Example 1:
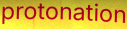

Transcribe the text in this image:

protonation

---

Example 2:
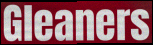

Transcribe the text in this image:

Gleaners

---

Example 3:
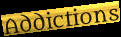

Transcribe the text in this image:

Addictions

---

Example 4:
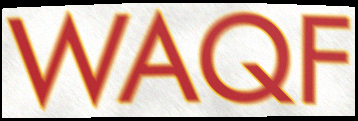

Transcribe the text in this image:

WAQF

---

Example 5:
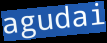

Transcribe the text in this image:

agudai